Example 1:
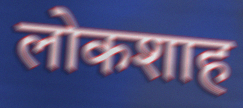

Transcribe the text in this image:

लोकशाह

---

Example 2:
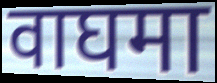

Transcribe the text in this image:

वाघमा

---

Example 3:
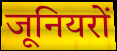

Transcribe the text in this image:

जूनियरों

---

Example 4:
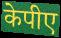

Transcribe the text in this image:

केपीए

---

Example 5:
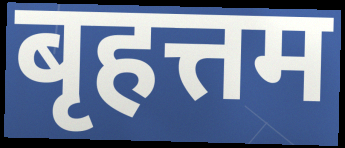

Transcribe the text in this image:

बृहत्तम